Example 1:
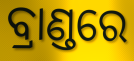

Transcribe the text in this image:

ବ୍ରାଣ୍ଡରେ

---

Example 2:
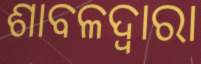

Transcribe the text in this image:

ଶାବଳଦ୍ୱାରା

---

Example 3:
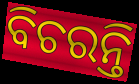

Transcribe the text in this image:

ବିଚରନ୍ତି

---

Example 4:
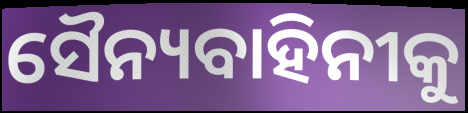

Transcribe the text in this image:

ସୈନ୍ୟବାହିନୀକୁ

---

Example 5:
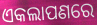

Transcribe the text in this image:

ଏକଲାପଣରେ